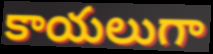
కాయలుగా